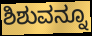
ಶಿಶುವನ್ನೂ